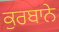
ਕੁਰਬਾਨੇ